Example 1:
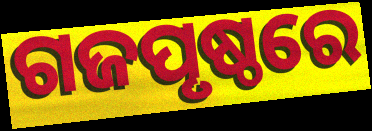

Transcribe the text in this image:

ଗଜପୃଷ୍ଠରେ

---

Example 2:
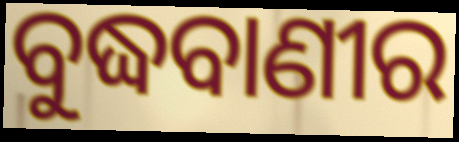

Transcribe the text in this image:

ବୁଦ୍ଧବାଣୀର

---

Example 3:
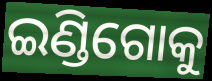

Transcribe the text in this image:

ଇଣ୍ଡିଗୋକୁ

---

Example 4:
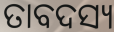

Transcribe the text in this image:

ତାବଦସ୍ୟ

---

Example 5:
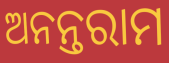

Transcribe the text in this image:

ଅନନ୍ତରାମ